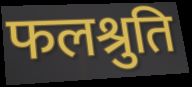
फलश्रुति